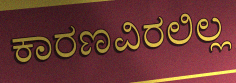
ಕಾರಣವಿರಲಿಲ್ಲ